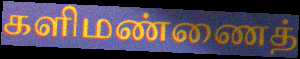
களிமண்ணைத்